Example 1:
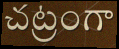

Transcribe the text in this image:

చట్రంగా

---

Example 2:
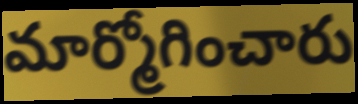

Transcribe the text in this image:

మార్మోగించారు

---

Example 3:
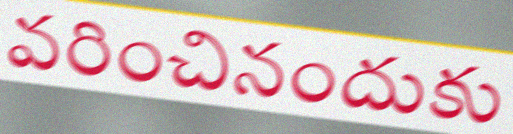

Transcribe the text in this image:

వరించినందుకు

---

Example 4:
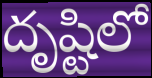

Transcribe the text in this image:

దృష్టిలో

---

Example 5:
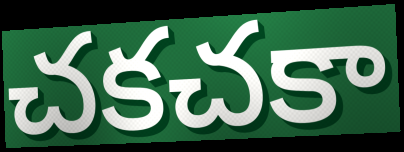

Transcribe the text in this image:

చకచకా